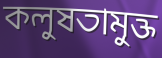
কলুষতামুক্ত